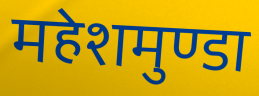
महेशमुण्डा